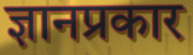
ज्ञानप्रकार